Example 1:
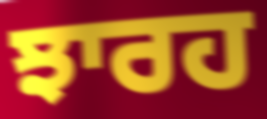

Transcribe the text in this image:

ਝਾਰਹ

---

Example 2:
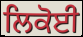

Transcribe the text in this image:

ਲਿਕੋਈ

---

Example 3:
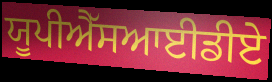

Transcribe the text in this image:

ਯੂਪੀਐੱਸਆਈਡੀਏ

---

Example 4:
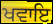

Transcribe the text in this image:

ਖਵਾਇ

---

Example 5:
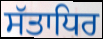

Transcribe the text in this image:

ਸੱਤਾਧਿਰ